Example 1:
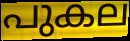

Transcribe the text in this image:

പുകല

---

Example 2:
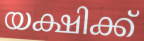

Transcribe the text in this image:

യക്ഷിക്ക്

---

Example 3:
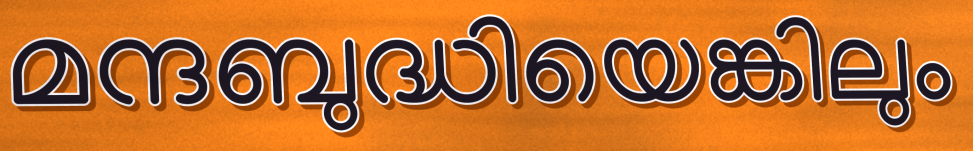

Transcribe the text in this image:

മന്ദബുദ്ധിയെങ്കിലും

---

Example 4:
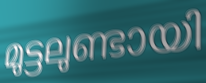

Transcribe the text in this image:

മുട്ടലുണ്ടായി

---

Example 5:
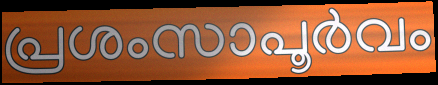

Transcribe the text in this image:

പ്രശംസാപൂർവം